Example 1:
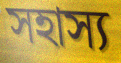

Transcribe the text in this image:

সহাস্য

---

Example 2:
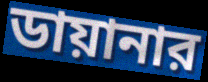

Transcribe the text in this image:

ডায়ানার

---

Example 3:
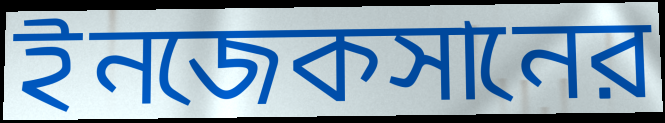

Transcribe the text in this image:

ইনজেকসানের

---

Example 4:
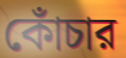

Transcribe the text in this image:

কোঁচার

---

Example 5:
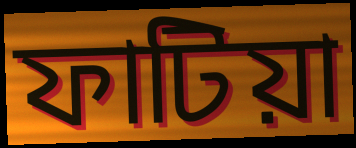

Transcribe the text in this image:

ফাটিয়া